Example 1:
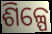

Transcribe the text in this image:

ଶିଳ୍ପେ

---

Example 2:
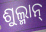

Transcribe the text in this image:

ଶୁଲ୍ମାନ୍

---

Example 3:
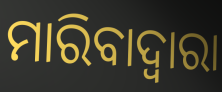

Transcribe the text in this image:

ମାରିବାଦ୍ୱାରା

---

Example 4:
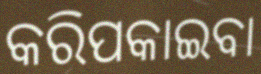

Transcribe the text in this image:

କରିପକାଇବା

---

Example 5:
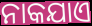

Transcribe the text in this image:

ନାକଯାଏ